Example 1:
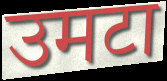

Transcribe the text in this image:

उमटा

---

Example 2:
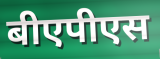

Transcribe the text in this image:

बीएपीएस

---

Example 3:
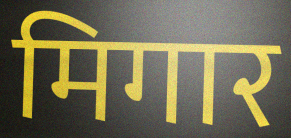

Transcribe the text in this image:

मिगार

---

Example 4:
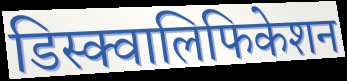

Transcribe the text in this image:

डिस्क्वालिफिकेशन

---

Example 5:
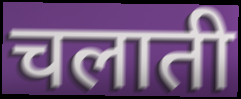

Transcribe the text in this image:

चलाती